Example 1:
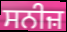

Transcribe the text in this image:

ਸਨੀਜ਼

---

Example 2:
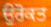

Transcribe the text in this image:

ਉਰੋਕਤ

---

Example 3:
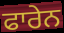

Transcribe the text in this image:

ਫਾਰੇਨ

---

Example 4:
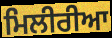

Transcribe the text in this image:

ਮਿਲੀਰੀਆ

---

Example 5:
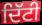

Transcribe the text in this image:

ਦਿੱਟੀ